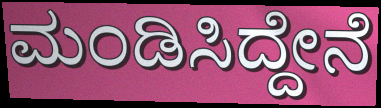
ಮಂಡಿಸಿದ್ದೇನೆ